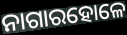
ନାଗାରହୋଳେ